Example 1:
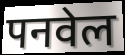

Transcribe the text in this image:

पनवेल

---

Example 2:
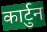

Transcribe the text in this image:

कार्टुन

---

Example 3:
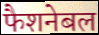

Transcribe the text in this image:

फैशनेबल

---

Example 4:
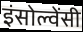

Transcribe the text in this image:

इंसोल्वेंसी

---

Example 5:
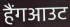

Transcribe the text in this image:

हैंगआउट